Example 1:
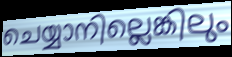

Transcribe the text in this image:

ചെയ്യാനില്ലെങ്കിലും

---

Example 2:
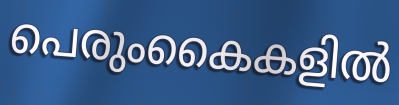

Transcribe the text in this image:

പെരുംകൈകളിൽ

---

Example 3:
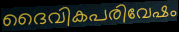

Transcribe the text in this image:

ദൈവികപരിവേഷം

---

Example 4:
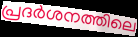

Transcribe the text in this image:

പ്രദർശനത്തിലെ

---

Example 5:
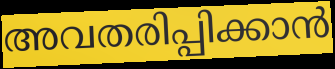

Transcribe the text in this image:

അവതരിപ്പിക്കാൻ